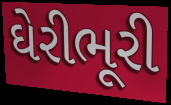
ઘેરીભૂરી